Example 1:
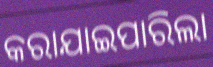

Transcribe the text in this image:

କରାଯାଇପାରିଲା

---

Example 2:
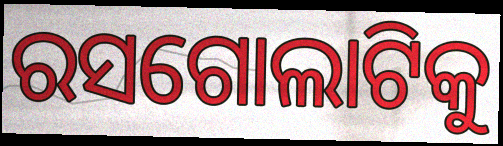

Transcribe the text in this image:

ରସଗୋଲାଟିକୁ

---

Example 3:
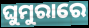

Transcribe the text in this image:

ଘୁମୁରାରେ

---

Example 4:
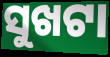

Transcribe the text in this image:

ସୁଖଟା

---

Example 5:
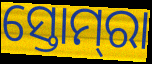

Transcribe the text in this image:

ସ୍ତୋମ୍‌ରା